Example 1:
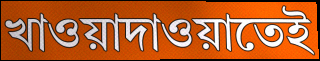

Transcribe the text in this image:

খাওয়াদাওয়াতেই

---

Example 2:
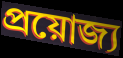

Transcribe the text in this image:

প্রয়োজ্য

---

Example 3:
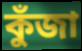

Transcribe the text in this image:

কুঁজা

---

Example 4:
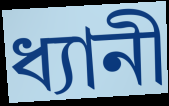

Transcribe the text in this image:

ধ্যানী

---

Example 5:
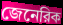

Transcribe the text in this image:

জেনেরিক